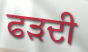
ਫੜਦੀ